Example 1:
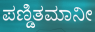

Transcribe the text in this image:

ಪಣ್ಡಿತಮಾನೀ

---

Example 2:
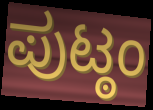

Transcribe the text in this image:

ಪುಟ್ಠಂ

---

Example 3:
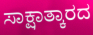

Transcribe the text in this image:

ಸಾಕ್ಷಾತ್ಕಾರದ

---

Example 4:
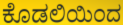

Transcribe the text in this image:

ಕೊಡಲಿಯಿಂದ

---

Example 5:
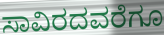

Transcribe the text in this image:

ಸಾವಿರದವರೆಗೂ